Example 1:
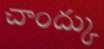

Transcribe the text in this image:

చాంద్కు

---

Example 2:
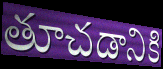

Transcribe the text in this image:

తూచడానికి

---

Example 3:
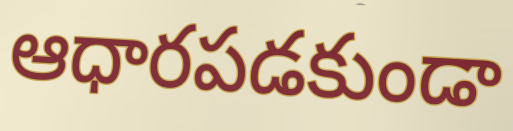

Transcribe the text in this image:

ఆధారపడకుండా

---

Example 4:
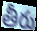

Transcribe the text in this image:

తీరు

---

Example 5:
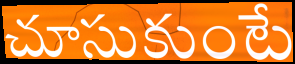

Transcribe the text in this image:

చూసుకుంటే